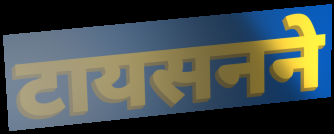
टायसनने